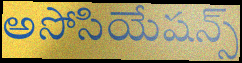
అసోసియేషన్స్